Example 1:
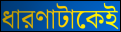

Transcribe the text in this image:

ধারণাটাকেই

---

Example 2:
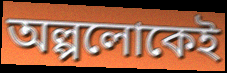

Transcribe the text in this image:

অল্পলোকেই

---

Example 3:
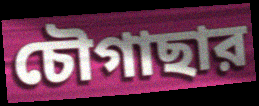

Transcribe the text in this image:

চৌগাছার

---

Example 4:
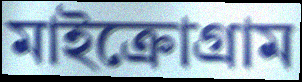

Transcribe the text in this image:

মাইক্রোগ্রাম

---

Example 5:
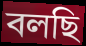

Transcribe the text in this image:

বলছি